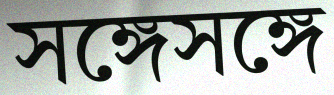
সঙ্গেসঙ্গে